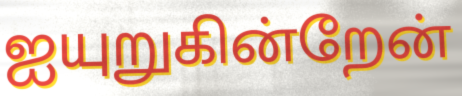
ஐயுறுகின்றேன்